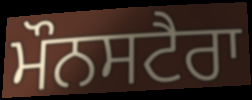
ਮੌਨਸਟੈਰਾ